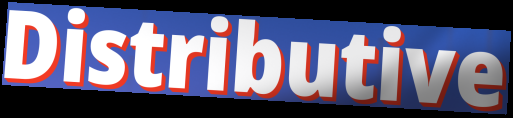
Distributive